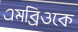
এমব্রিওকে